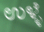
ಉಳ್ಳೆ